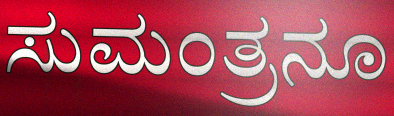
ಸುಮಂತ್ರನೂ